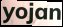
yojan